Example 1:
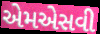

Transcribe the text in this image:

એમએસવી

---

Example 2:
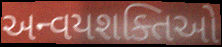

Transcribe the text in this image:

અન્વયશક્તિઓ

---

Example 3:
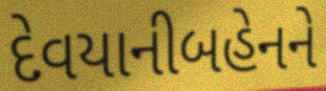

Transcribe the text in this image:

દેવયાનીબહેનને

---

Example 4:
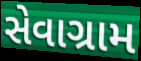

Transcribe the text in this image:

સેવાગ્રામ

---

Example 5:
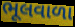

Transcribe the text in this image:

ભૂલવાળા